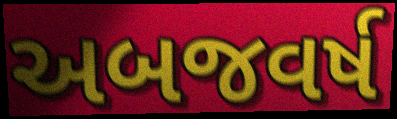
અબજવર્ષ